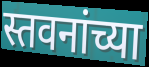
स्तवनांच्या